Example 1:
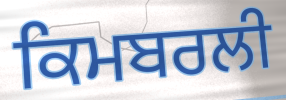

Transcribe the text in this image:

ਕਿਮਬਰਲੀ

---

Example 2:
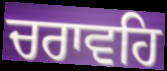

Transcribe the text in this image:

ਚਰਾਵਹਿ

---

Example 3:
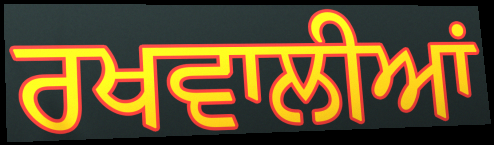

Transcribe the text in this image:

ਰਖਵਾਲੀਆਂ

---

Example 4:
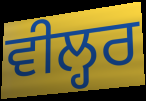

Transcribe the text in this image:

ਵੀਲ੍ਹਰ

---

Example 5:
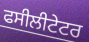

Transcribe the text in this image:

ਫਸੀਲੀਟੇਟਰ